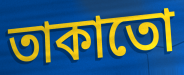
তাকাতো